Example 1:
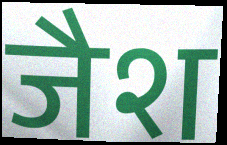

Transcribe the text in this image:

जैश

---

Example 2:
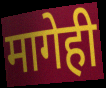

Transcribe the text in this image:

मागेही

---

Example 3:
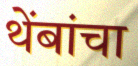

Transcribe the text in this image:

थेंबांचा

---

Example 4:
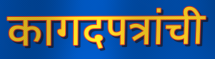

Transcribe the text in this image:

कागदपत्रांची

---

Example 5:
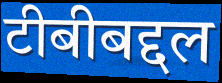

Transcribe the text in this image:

टीबीबद्दल